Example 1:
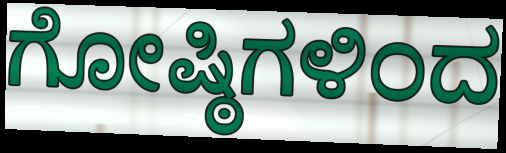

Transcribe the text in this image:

ಗೋಷ್ಠಿಗಳಿಂದ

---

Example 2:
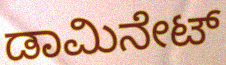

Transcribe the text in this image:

ಡಾಮಿನೇಟ್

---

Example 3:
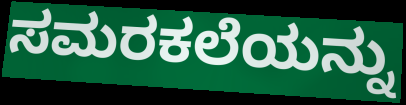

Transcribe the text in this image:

ಸಮರಕಲೆಯನ್ನು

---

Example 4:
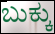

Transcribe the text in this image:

ಬುಕ್ಕು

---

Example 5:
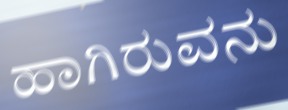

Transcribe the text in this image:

ಹಾಗಿರುವನು